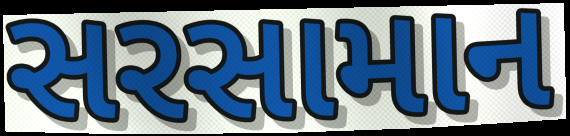
સરસામાન